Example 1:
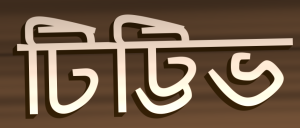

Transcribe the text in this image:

টিট্টিভ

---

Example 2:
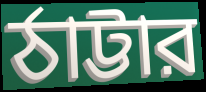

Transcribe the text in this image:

ঠাট্টার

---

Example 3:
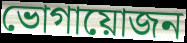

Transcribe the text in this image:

ভোগায়োজন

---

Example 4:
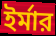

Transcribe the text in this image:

ইর্মার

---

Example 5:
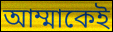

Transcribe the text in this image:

আম্মাকেই